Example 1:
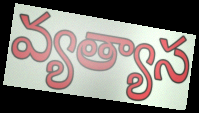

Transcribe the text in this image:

వ్యత్యాస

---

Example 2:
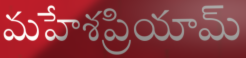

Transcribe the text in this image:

మహేశప్రియామ్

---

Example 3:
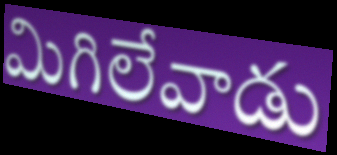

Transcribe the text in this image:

మిగిలేవాడు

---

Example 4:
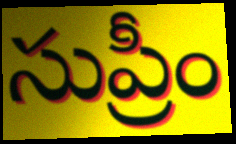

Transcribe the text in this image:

సుప్రీం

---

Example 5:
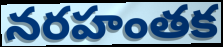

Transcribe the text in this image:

నరహంతక